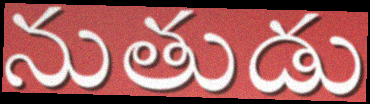
నుతుడు